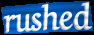
rushed